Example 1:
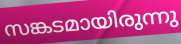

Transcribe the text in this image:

സങ്കടമായിരുന്നു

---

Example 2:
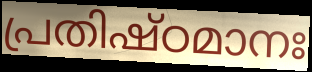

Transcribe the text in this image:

പ്രതിഷ്ഠമാനഃ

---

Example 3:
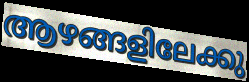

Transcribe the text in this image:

ആഴങ്ങളിലേക്കു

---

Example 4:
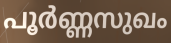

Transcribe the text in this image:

പൂർണ്ണസുഖം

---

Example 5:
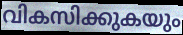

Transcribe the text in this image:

വികസിക്കുകയും